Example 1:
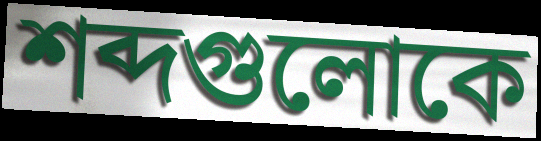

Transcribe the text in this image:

শব্দগুলোকে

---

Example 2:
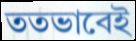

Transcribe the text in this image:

ততভাবেই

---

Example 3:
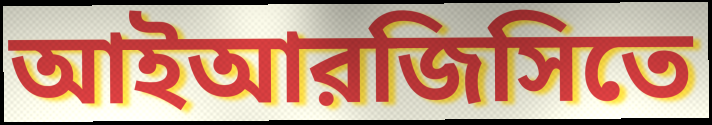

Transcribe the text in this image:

আইআরজিসিতে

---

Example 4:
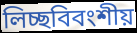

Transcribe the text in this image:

লিচ্ছবিবংশীয়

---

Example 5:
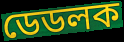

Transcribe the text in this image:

ডেডলক